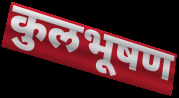
कुलभूषण